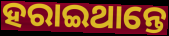
ହରାଇଥାନ୍ତେ